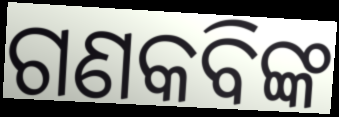
ଗଣକବିଙ୍କ